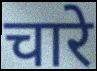
चारे